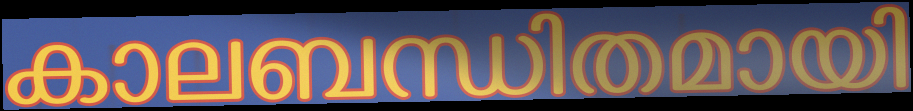
കാലബന്ധിതമായി